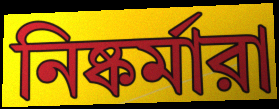
নিষ্কর্মারা